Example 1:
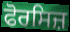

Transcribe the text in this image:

ਫੋਰਸਿਜ਼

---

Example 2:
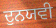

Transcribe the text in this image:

ਦੁਨਯਵੀ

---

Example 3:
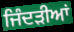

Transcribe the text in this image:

ਜਿੰਦੜੀਆਂ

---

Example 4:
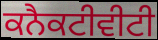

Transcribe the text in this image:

ਕਨੈਕਟੀਵੀਟੀ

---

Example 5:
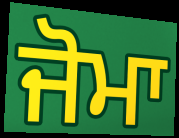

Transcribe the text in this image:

ਜੋਮਾ